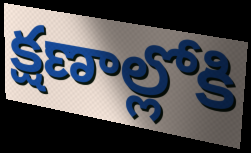
క్షణాల్లోకి